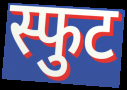
स्फुट